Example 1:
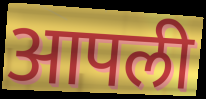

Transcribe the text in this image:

आपली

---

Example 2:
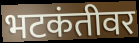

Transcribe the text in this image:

भटकंतीवर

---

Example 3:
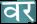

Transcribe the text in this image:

वर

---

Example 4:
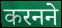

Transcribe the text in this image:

करनने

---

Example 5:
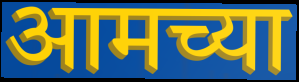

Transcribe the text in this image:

आमच्या